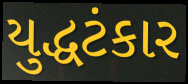
યુદ્ધટંકાર